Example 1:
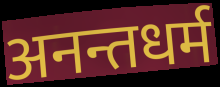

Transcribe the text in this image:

अनन्तधर्म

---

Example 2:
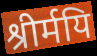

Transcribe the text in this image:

श्रीर्मयि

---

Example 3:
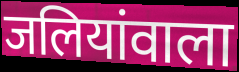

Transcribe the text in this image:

जलियांवाला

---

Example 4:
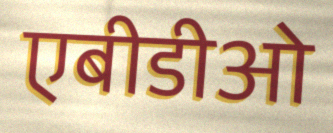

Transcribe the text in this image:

एबीडीओ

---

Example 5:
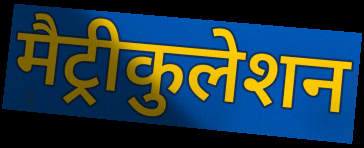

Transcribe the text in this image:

मैट्रीकुलेशन